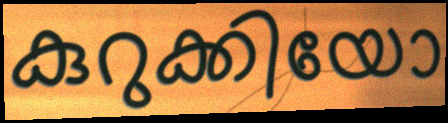
കുറുക്കിയോ